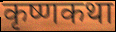
कृष्णकथा